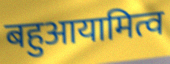
बहुआयामित्व